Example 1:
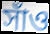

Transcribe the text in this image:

সাঁও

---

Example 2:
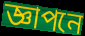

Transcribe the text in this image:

জ্ঞাপনে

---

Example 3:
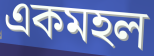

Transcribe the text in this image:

একমহল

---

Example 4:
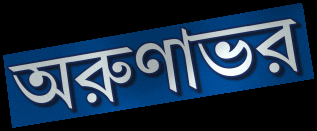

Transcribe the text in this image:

অরুণাভর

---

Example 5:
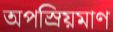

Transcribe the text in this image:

অপস্রিয়মাণ